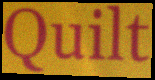
Quilt